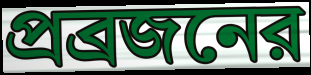
প্রব্রজনের